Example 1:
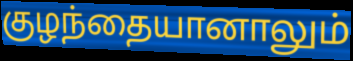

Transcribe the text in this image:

குழந்தையானாலும்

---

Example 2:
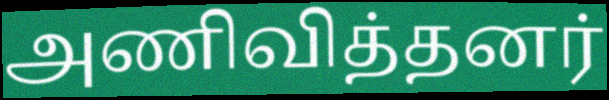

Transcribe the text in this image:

அணிவித்தனர்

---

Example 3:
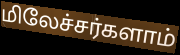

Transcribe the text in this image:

மிலேச்சர்களாம்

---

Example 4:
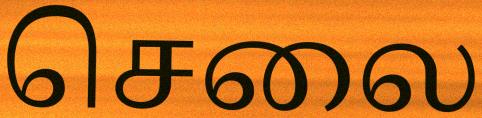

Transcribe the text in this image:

செலை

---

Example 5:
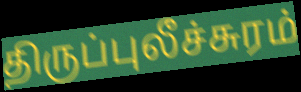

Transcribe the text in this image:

திருப்புலீச்சுரம்